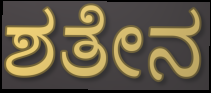
ಶತೇನ